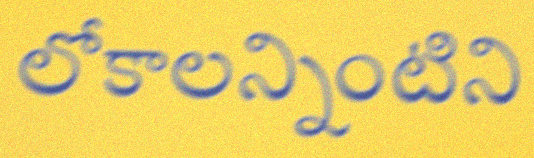
లోకాలన్నింటిని